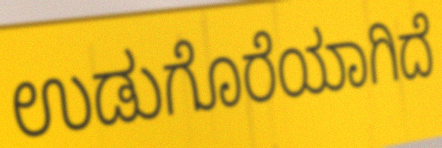
ಉಡುಗೊರೆಯಾಗಿದೆ